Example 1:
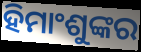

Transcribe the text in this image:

ହିମାଂଶୁଙ୍କର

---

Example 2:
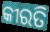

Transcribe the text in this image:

କୀରତି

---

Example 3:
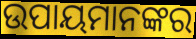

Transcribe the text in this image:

ଉପାୟମାନଙ୍କର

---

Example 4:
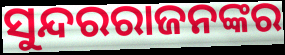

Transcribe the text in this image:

ସୁନ୍ଦରରାଜନଙ୍କର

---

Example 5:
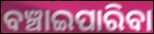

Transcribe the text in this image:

ବଞ୍ଚାଇପାରିବା